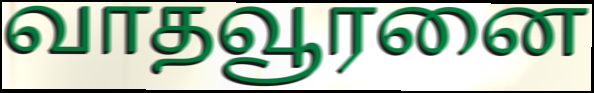
வாதவூரனை